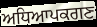
ਅਧਿਆਪਕਗਣ